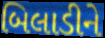
બિલાડીને